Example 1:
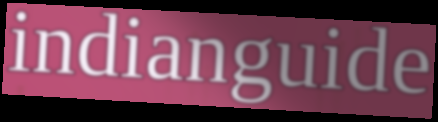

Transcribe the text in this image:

indianguide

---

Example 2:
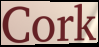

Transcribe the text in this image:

Cork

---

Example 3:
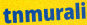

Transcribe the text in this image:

tnmurali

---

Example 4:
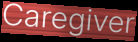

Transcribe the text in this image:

Caregiver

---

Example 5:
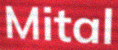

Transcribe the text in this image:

Mital